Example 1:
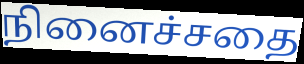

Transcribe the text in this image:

நினைச்சதை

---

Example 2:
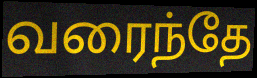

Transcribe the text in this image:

வரைந்தே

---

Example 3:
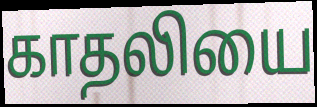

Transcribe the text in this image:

காதலியை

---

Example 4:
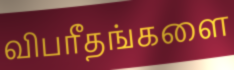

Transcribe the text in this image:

விபரீதங்களை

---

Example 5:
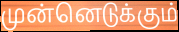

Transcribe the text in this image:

முன்னெடுக்கும்